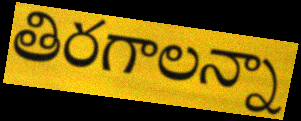
తిరగాలన్నా